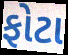
ફોટા